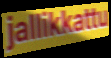
jallikkattu